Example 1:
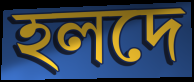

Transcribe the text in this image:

হলদে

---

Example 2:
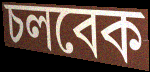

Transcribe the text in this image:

চলবেক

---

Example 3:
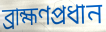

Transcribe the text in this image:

ব্রাহ্মণপ্রধান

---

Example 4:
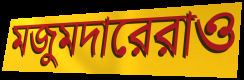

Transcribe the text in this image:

মজুমদারেরাও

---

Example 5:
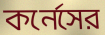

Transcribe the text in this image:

কর্নেসের